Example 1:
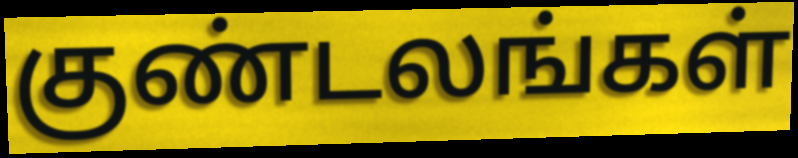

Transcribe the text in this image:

குண்டலங்கள்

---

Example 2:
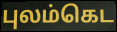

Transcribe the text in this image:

புலம்கெட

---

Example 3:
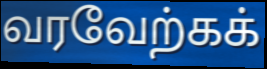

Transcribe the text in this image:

வரவேற்கக்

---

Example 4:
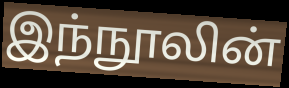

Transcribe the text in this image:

இந்நூலின்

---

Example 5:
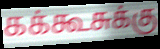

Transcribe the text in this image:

கக்கூசுக்கு